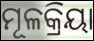
ମୂଳକ୍ରିୟା